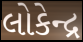
લોકેન્દ્ર